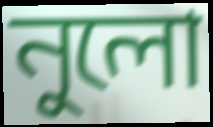
নুলো